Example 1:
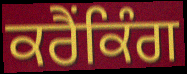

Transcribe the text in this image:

ਕਰੈਂਕਿੰਗ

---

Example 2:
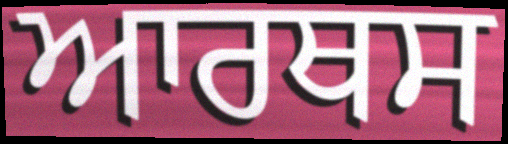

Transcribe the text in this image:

ਆਰਥਸ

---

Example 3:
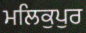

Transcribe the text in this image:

ਮਲਿਕੁਪੁਰ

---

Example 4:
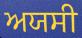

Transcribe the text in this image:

ਅਯਸੀ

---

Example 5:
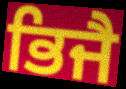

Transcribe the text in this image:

ਭਿਜੈ